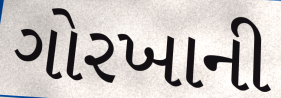
ગોરખાની